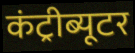
कंट्रीब्यूटर